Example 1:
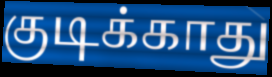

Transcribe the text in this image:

குடிக்காது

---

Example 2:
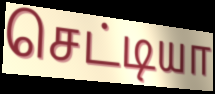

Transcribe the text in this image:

செட்டியா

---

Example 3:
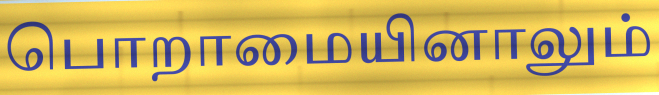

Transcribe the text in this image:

பொறாமையினாலும்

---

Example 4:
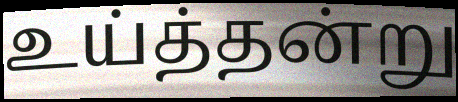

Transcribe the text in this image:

உய்த்தன்று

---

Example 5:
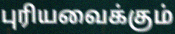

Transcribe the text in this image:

புரியவைக்கும்